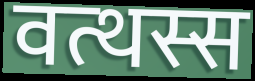
वत्थस्स